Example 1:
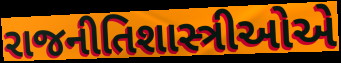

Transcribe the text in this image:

રાજનીતિશાસ્ત્રીઓએ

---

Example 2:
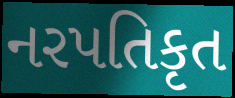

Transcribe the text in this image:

નરપતિકૃત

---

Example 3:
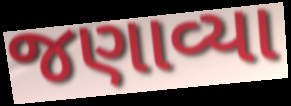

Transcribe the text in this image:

જણાવ્યા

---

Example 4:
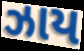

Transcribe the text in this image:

ઝાય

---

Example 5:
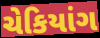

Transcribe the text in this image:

ચેકિયાંગ